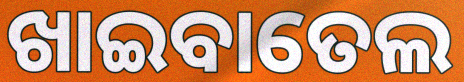
ଖାଇବାତେଲ